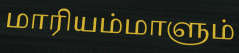
மாரியம்மாளும்